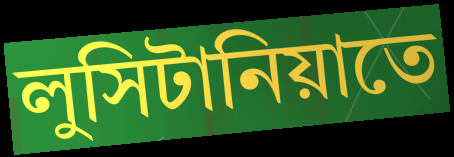
লুসিটানিয়াতে